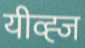
यीव्ह्ज